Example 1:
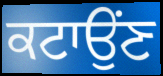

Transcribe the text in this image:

ਕਟਾਉਂਣ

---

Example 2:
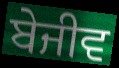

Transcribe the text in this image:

ਬੇਜੀਵ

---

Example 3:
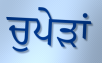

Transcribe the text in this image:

ਚੁਪੇੜਾਂ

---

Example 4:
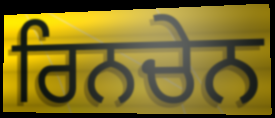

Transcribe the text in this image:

ਰਿਨਚੇਨ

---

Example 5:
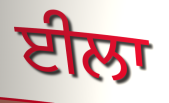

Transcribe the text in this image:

ਈਲਾ